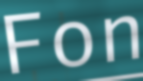
Fon